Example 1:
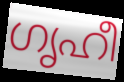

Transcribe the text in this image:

ഗൃഹീ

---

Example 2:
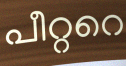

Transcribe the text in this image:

പീറ്ററെ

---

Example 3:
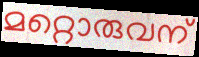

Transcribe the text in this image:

മറ്റൊരുവന്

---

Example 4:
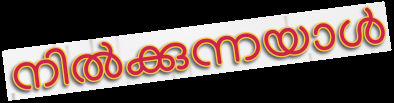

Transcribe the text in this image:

നിൽക്കുന്നയാൾ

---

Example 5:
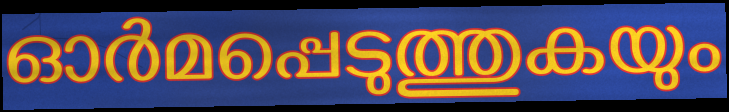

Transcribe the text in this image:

ഓർമപ്പെടുത്തുകയും